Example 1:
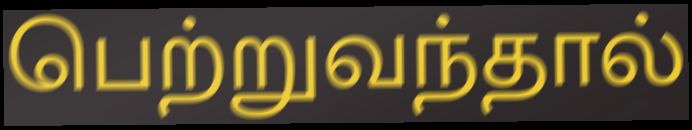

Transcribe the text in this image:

பெற்றுவந்தால்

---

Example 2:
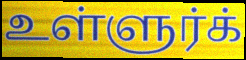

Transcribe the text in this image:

உள்ளுர்க்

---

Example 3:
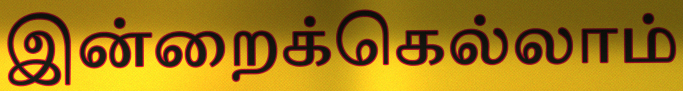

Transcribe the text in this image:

இன்றைக்கெல்லாம்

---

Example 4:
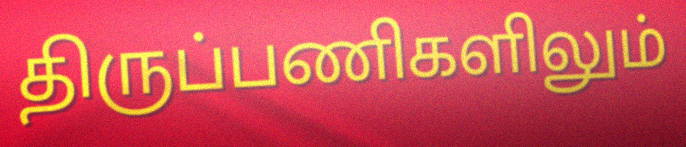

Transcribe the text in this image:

திருப்பணிகளிலும்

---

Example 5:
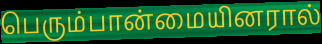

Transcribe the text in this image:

பெரும்பான்மையினரால்